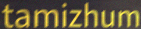
tamizhum